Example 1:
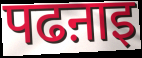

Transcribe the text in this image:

पढऩाइ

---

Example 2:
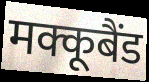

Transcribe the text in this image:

मक्कूबैंड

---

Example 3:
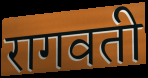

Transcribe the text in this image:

रागवती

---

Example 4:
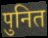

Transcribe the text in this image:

पुनित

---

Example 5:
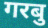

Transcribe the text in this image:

गरबु